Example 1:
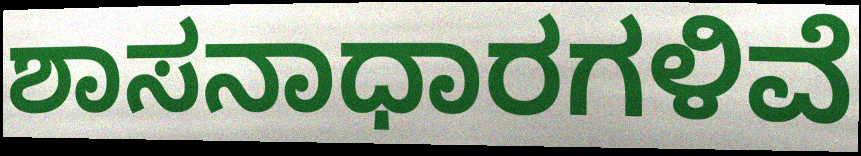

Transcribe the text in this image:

ಶಾಸನಾಧಾರಗಳಿವೆ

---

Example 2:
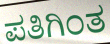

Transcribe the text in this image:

ಪತಿಗಿಂತ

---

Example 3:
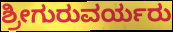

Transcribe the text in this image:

ಶ್ರೀಗುರುವರ್ಯರು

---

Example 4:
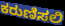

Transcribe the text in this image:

ಕರುಣಿಸಲಿ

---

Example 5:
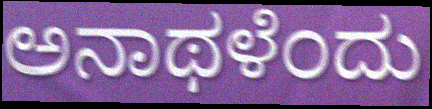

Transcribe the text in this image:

ಅನಾಥಳೆಂದು